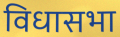
विधासभा